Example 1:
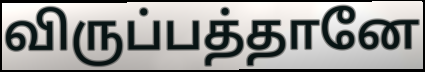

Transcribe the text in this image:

விருப்பத்தானே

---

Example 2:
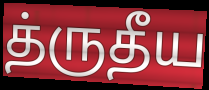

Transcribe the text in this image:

த்ருதீய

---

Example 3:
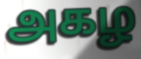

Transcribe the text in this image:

அகழ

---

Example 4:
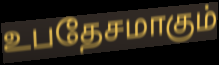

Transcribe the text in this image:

உபதேசமாகும்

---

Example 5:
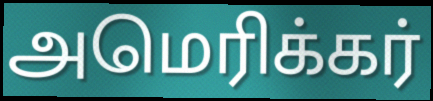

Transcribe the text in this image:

அமெரிக்கர்